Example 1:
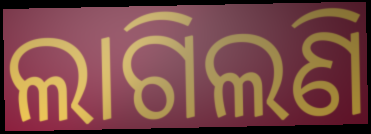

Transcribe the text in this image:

ଲାଗିଲଣି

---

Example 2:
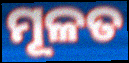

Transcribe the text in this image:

ମୂଳତ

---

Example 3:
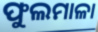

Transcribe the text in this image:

ଫୁଲମାଳା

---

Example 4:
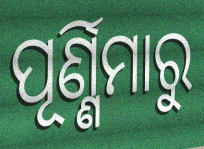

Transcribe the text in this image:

ପୂର୍ଣ୍ଣିମାରୁ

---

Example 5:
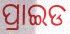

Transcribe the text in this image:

ପ୍ରାଇଡ